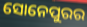
ସୋନେପୁରର